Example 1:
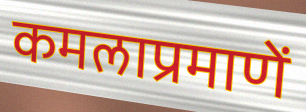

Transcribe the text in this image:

कमलाप्रमाणें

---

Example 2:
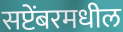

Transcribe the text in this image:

सप्टेंबरमधील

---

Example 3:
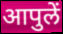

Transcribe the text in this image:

आपुलें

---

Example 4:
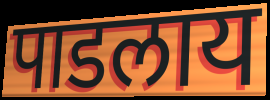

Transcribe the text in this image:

पाडलाय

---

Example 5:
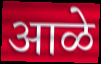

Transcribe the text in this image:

आळे